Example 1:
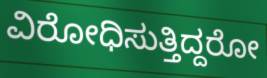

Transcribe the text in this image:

ವಿರೋಧಿಸುತ್ತಿದ್ದರೋ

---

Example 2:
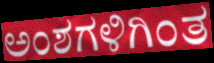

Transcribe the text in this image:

ಅಂಶಗಳಿಗಿಂತ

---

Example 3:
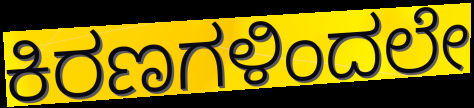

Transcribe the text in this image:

ಕಿರಣಗಳಿಂದಲೇ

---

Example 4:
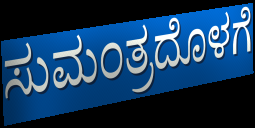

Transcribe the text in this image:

ಸುಮಂತ್ರದೊಳಗೆ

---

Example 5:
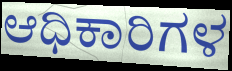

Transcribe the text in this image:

ಆಧಿಕಾರಿಗಳ